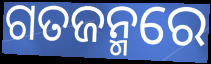
ଗତଜନ୍ମରେ